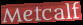
Metcalf